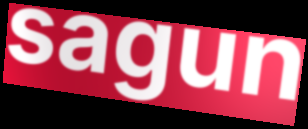
sagun